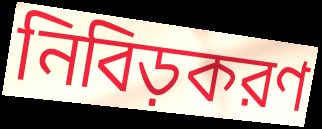
নিবিড়করণ